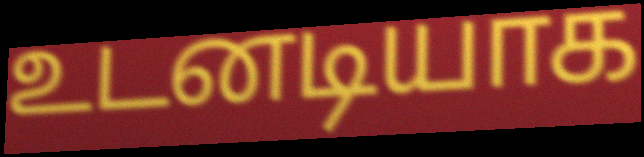
உடனடியாக